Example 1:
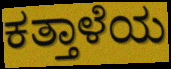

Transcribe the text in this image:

ಕತ್ತಾಳೆಯ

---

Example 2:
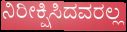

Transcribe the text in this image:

ನಿರೀಕ್ಷಿಸಿದವರಲ್ಲ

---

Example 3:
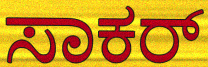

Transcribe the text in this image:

ಸಾಕರ್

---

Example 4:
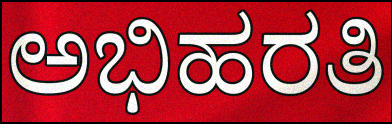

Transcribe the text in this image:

ಅಭಿಹರತಿ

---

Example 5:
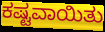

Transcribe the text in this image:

ಕಷ್ಟವಾಯಿತು